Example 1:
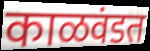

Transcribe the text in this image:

काळवंडत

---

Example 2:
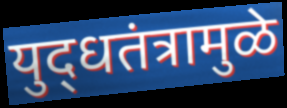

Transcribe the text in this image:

युद्धतंत्रामुळे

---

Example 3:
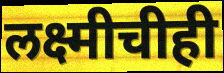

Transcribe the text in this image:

लक्ष्मीचीही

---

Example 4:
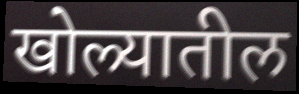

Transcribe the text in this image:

खोल्यातील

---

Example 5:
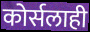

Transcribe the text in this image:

कोर्सलाही